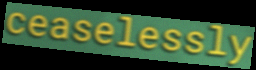
ceaselessly